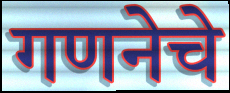
गणनेचे